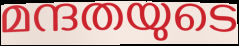
മന്ദതയുടെ